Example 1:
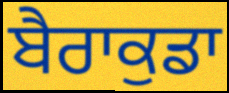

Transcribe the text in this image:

ਬੈਰਾਕੁਡਾ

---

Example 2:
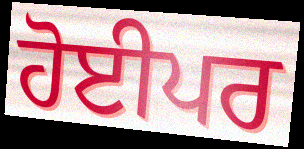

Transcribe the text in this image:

ਹੋਈਪਰ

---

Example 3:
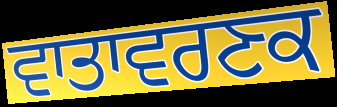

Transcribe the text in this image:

ਵਾਤਾਵਰਣਕ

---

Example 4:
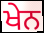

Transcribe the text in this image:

ਖੇਨ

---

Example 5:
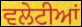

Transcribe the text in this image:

ਵਲੇਟੀਆਂ